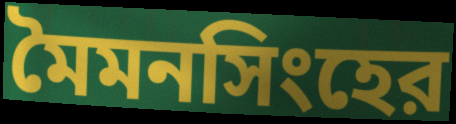
মৈমনসিংহের